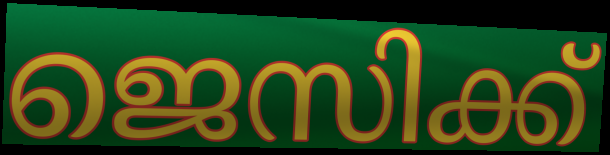
ജെസിക്ക്